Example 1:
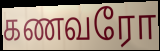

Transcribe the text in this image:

கணவரோ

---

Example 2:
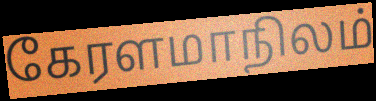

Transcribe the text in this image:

கேரளமாநிலம்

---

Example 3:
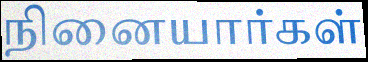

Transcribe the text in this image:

நினையார்கள்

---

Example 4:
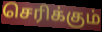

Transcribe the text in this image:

செரிக்கும்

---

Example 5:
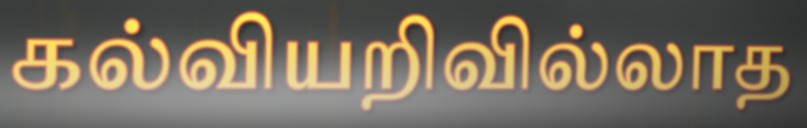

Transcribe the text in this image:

கல்வியறிவில்லாத